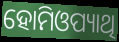
ହୋମିଓପ୍ୟାଥି